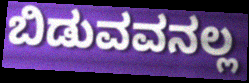
ಬಿಡುವವನಲ್ಲ